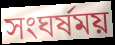
সংঘর্ষময়